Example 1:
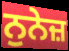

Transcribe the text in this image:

ਨੁਨੇਜ਼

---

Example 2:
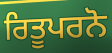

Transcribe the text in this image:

ਰਿਤੂਪਰਨੋ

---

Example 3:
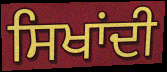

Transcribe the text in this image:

ਸਿਖਾਂਦੀ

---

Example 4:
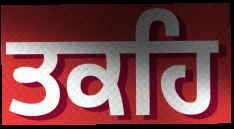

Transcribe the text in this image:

ਤਕਹਿ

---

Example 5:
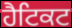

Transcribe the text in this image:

ਹੈਟਿਕਟ